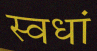
स्वधां